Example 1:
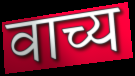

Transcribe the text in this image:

वाच्य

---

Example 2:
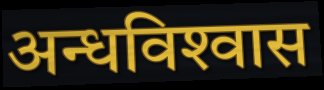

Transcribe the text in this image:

अन्‍धविश्‍वास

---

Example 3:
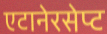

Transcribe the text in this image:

एटानेरसेप्ट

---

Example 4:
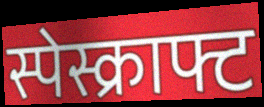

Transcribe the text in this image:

स्पेस्क्राफ्ट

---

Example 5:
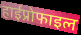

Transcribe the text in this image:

हाईप्रोफाइल